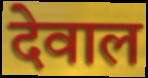
देवाल